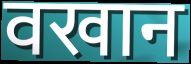
वखान